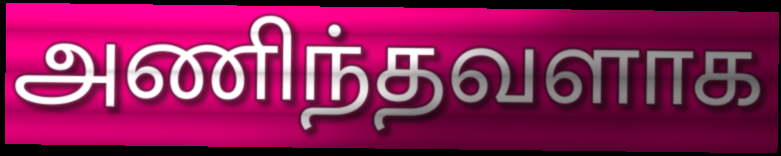
அணிந்தவளாக